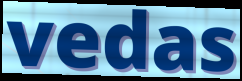
vedas